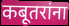
कबूतरांना